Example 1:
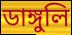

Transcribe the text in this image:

ডাঙ্গুলি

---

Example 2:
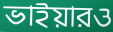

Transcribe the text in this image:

ভাইয়ারও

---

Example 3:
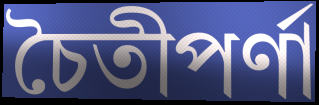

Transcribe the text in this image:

চৈতীপর্ণা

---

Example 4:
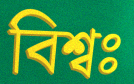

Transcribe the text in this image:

বিশ্বঃ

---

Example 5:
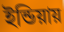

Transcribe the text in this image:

ইন্ডিয়ায়